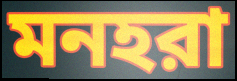
মনহরা